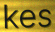
kes